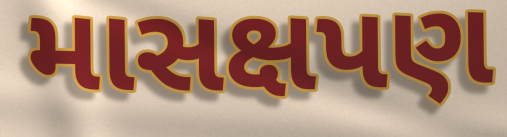
માસક્ષપણ